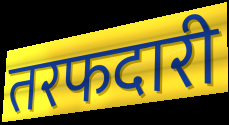
तरफदारी